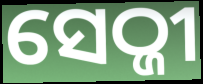
ସେଠ୍ଜୀ